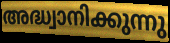
അദ്ധ്വാനിക്കുന്നു